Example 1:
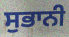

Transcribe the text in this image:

ਸੁਭਾਨੀ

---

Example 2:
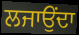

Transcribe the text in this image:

ਲਜਾਉਂਦਾ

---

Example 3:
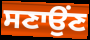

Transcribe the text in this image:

ਸਣਾਉਂਣ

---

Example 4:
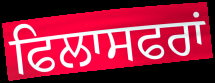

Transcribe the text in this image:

ਫਿਲਾਸਫਰਾਂ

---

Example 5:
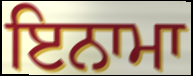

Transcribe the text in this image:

ਇਨਾਮਾ